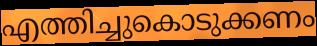
എത്തിച്ചുകൊടുക്കണം